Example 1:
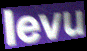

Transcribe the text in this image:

levu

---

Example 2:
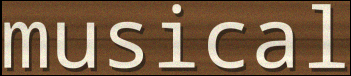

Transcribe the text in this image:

musical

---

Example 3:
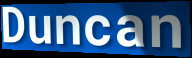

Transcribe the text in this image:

Duncan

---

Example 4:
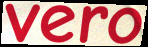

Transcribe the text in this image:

vero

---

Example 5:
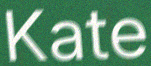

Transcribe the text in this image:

Kate